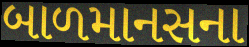
બાળમાનસના